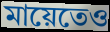
মায়েতেও